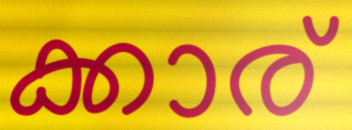
ക്കാര്